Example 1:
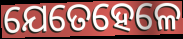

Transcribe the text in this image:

ଯେତେହେଳେ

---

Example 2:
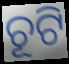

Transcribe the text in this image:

ଚୂଟି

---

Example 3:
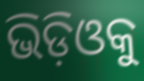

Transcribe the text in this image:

ଭିଡ଼ିଓକୁ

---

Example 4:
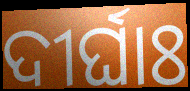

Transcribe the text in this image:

ଦୀର୍ଘାଃ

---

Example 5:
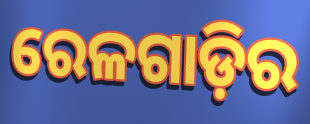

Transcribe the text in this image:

ରେଳଗାଡ଼ିର